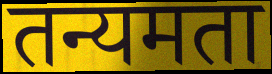
तन्यमता